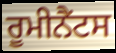
ਰੂਮੀਨੈਂਟਸ